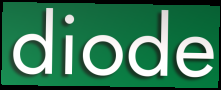
diode